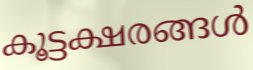
കൂട്ടക്ഷരങ്ങൾ